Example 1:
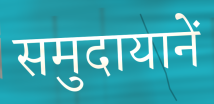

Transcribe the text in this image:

समुदायानें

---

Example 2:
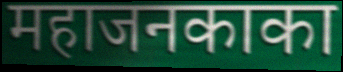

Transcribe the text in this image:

महाजनकाका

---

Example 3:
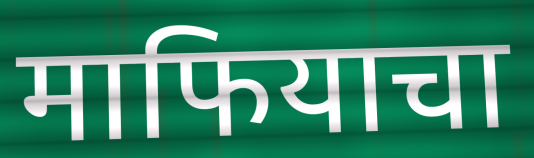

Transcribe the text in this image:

माफियाचा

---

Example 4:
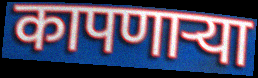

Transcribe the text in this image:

कापणाऱ्या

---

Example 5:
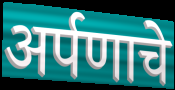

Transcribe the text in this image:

अर्पणाचे